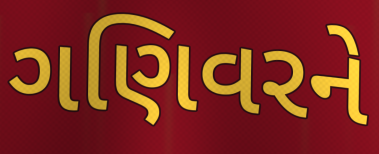
ગણિવરને